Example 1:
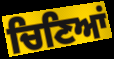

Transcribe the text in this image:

ਚਿਣਿਆਂ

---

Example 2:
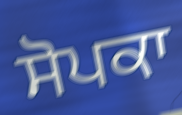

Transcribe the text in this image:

ਸੋਪਕਾ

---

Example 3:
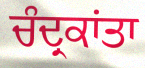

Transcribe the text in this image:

ਚੰਦ੍ਰਕਾਂਤਾ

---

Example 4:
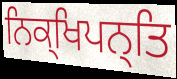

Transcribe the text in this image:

ਨਿਕ੍ਖਿਪਨ੍ਤਿ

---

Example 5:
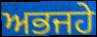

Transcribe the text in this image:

ਅਭਜਹੇ